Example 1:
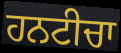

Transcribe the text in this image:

ਹਨਟੀਚਾ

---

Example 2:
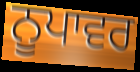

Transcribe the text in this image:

ਨੂਪਾਵਰ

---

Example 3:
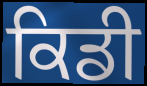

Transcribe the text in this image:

ਕਿਡੀ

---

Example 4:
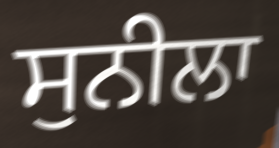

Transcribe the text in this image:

ਸੁਨੀਲਾ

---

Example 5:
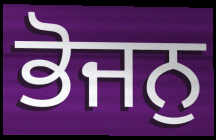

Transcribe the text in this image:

ਭੋਜਨੁ